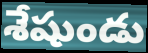
శేషుండు